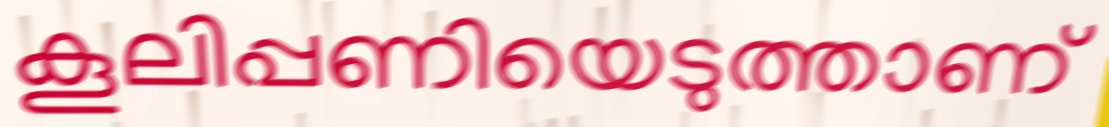
കൂലിപ്പണിയെടുത്താണ്